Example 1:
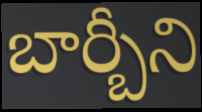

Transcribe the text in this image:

బార్బీని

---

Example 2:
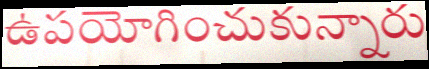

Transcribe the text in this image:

ఉపయోగించుకున్నారు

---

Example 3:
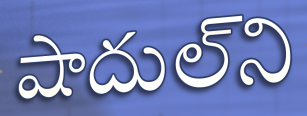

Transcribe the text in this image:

షాదుల్‌ని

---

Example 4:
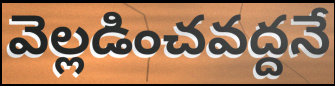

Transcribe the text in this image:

వెల్లడించవద్దనే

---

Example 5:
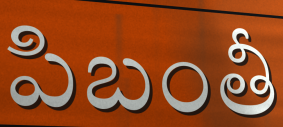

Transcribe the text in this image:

పిబంతీ